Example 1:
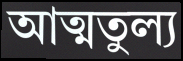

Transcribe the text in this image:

আত্মতুল্য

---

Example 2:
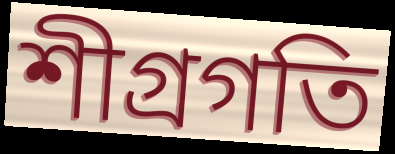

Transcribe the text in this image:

শীগ্রগতি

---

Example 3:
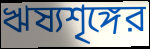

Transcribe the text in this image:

ঋষ্যশৃঙ্গের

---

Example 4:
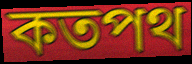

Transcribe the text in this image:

কতপথ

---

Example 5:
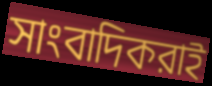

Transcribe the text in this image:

সাংবাদিকরাই